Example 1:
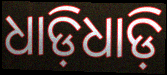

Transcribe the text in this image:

ଧାଡ଼ିଧାଡ଼ି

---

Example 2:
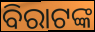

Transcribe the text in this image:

ବିରାଟଙ୍କ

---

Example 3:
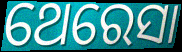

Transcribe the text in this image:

ଥେରେସା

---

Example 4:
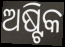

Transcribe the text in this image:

ଅଷ୍ଟିକ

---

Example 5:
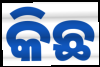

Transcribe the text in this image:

କିଛ